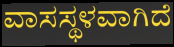
ವಾಸಸ್ಥಳವಾಗಿದೆ